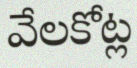
వేలకోట్ల